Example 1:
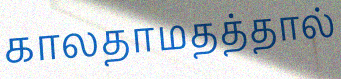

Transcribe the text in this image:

காலதாமதத்தால்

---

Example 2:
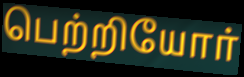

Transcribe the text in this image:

பெற்றியோர்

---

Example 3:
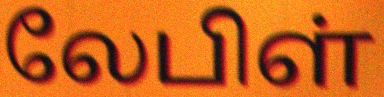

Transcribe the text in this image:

லேபிள்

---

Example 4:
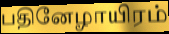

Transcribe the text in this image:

பதினேழாயிரம்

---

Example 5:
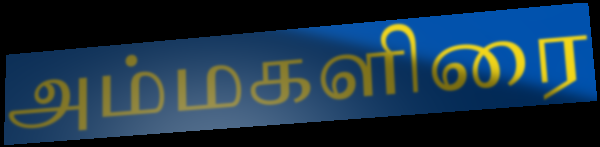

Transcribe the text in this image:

அம்மகளிரை